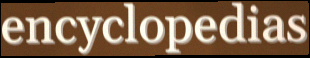
encyclopedias